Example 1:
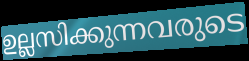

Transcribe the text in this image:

ഉല്ലസിക്കുന്നവരുടെ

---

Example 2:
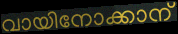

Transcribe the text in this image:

വായിനോക്കാന്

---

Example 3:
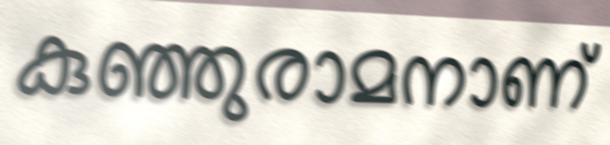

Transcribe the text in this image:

കുഞ്ഞുരാമനാണ്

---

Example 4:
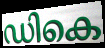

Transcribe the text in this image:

ഡികെ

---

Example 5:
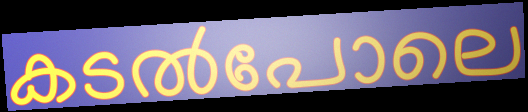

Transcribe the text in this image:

കടൽപോലെ